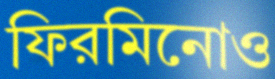
ফিরমিনোও